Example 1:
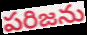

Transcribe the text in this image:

పరిజను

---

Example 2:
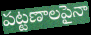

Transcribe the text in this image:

పట్టణాలపైనా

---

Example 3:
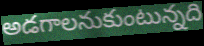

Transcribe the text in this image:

అడగాలనుకుంటున్నది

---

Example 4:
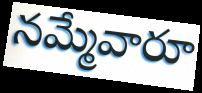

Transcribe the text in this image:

నమ్మేవారూ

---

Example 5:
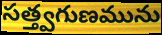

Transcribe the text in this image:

సత్త్వగుణమును